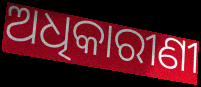
ଅଧିକାରୀଣୀ